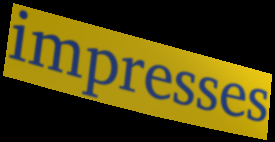
impresses